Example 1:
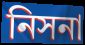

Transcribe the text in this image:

নিসনা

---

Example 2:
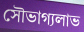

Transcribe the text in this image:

সৌভাগ্যলাভ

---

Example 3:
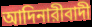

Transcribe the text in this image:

আদিনারীবাদী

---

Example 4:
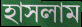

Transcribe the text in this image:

হাসলাম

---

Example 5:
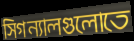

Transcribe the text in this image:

সিগন্যালগুলোতে